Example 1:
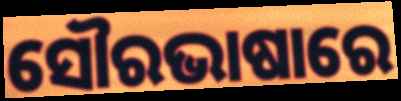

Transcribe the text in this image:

ସୌରଭାଷାରେ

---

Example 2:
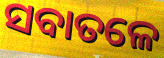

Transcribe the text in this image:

ସବାତଳେ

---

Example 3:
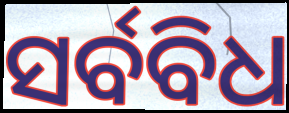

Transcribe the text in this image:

ସର୍ବବିଧ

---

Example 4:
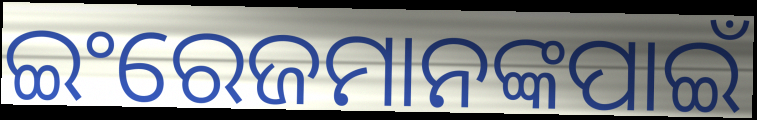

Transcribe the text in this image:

ଇଂରେଜମାନଙ୍କପାଇଁ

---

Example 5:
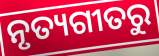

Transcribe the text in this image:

ନୃତ୍ୟଗୀତରୁ